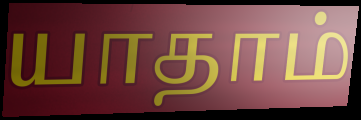
யாதாம்